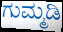
ಗುಮ್ಮಡಿ